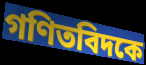
গণিতবিদকে